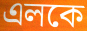
এলকে